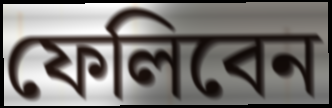
ফেলিবেন